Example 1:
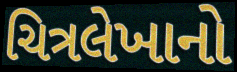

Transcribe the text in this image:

ચિત્રલેખાનો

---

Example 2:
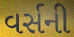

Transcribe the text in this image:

વર્સની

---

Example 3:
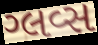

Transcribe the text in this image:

ગ્લવ્સ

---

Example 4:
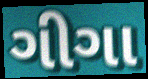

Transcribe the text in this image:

ગીગા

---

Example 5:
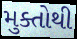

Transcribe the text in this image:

મુક્તોથી